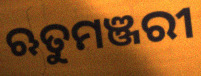
ଋତୁମଞ୍ଜରୀ